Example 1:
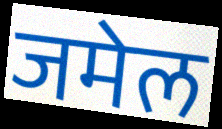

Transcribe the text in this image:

जमेल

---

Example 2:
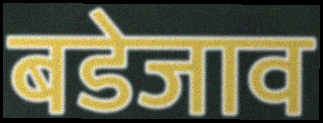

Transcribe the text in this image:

बडेजाव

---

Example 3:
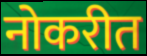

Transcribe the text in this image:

नोकरीत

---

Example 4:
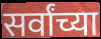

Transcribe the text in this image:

सर्वांच्या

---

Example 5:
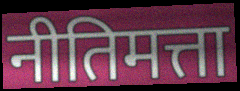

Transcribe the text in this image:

नीतिमत्ता